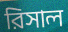
রিসাল